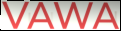
VAWA